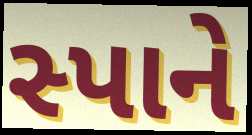
સ્પાને